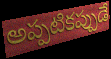
అప్పటికప్పుడే